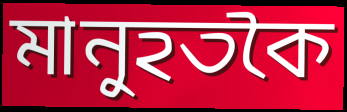
মানুহতকৈ